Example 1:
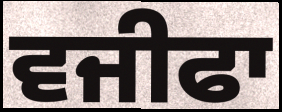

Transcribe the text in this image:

ਵਜੀਫਾ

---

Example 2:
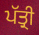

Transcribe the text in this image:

ਪੱਤ੍ਰੀ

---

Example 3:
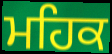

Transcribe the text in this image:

ਮਹਿਕ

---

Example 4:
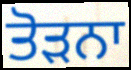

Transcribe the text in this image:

ਤੋੜਨਾ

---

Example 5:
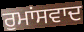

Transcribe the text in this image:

ਰੁਮਾਂਸਵਾਦ